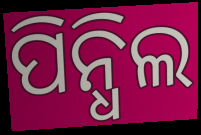
ପିନ୍ଧିଲ